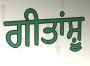
ਗੀਤਾਂਸ਼ੂ